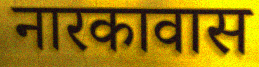
नारकावास